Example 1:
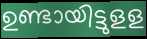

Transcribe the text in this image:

ഉണ്ടായിട്ടുളള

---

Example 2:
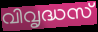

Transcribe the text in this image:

വിവൃദ്ധസ്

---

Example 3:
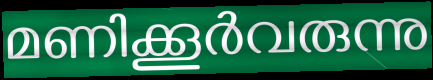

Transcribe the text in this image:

മണിക്കൂർവരുന്നു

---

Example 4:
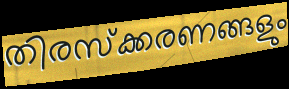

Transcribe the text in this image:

തിരസ്ക്കരണങ്ങളും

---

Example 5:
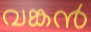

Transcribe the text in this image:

വങ്കൻ